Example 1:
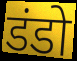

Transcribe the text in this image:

डंडो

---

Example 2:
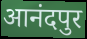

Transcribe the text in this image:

आनंदपुर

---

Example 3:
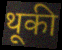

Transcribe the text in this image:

थूकी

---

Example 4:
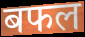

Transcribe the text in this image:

बफल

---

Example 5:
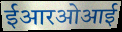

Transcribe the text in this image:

ईआरओआई